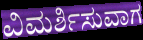
ವಿಮರ್ಶಿಸುವಾಗ